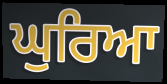
ਘੁਰਿਆ